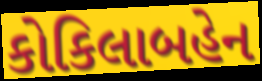
કોકિલાબહેન